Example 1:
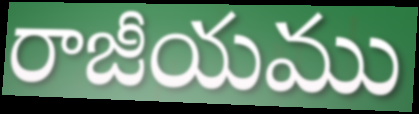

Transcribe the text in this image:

రాజీయము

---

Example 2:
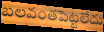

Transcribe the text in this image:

బలవంతపెట్టలేదు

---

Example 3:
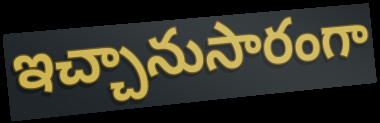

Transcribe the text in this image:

ఇచ్చానుసారంగా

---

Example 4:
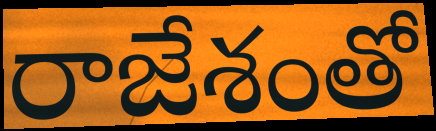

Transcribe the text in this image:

రాజేశంతో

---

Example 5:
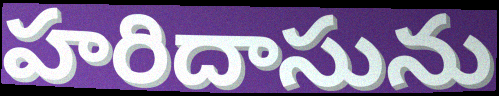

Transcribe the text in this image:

హరిదాసును